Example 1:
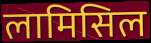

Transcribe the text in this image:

लामिसिल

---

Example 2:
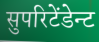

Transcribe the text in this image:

सुपरिटेंडेन्ट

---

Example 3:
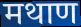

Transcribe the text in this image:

मथाण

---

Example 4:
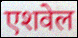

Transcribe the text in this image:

एशवेल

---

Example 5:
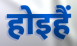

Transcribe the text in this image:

होइहैं